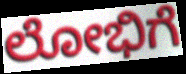
ಲೋಭಿಗೆ